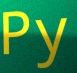
Py